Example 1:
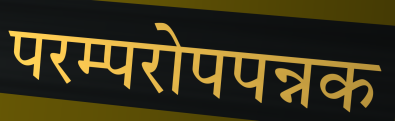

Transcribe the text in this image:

परम्परोपपन्नक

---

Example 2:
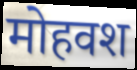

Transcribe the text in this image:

मोहवश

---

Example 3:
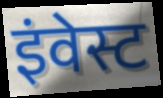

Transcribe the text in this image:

इंवेस्ट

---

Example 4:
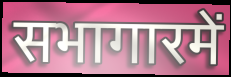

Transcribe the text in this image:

सभागारमें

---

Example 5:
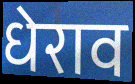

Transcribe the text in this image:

धेराव